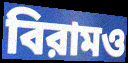
বিরামও